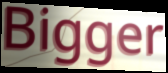
Bigger